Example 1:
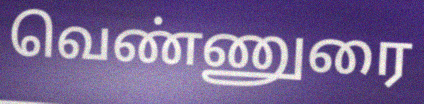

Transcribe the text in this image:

வெண்ணுரை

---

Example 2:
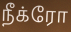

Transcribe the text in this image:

நீக்ரோ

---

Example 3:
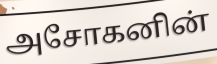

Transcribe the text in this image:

அசோகனின்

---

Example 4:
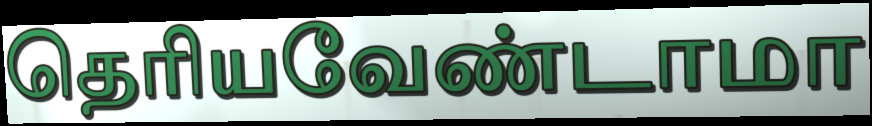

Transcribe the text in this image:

தெரியவேண்டாமா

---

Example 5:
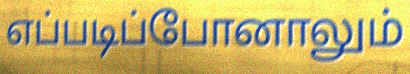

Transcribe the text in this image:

எப்படிப்போனாலும்